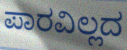
ಪಾರವಿಲ್ಲದ